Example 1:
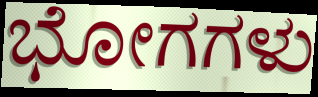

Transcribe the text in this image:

ಭೋಗಗಳು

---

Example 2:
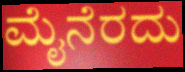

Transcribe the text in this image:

ಮೈನೆರದು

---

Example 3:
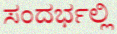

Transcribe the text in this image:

ಸಂದರ್ಭಲ್ಲಿ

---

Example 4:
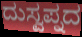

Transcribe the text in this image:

ದುಸ್ವಪ್ನದ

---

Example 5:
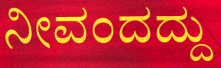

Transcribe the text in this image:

ನೀವಂದದ್ದು